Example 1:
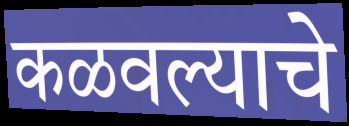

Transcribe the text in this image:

कळवल्याचे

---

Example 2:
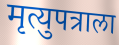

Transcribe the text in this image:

मृत्युपत्राला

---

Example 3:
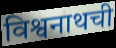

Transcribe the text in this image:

विश्वनाथची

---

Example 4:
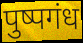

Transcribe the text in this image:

पुष्पगंध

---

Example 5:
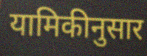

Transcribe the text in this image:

यामिकीनुसार